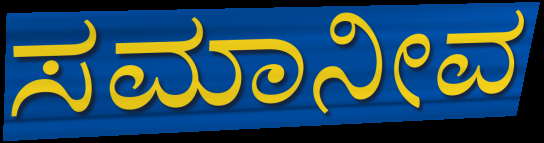
ಸಮಾನೀವ